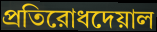
প্রতিরোধদেয়াল